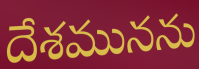
దేశమునను